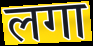
लगा